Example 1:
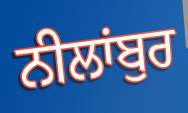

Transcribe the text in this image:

ਨੀਲਾਂਬੁਰ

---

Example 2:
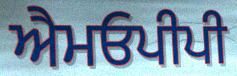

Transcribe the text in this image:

ਐਮਓਪੀਪੀ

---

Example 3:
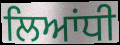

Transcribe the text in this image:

ਲਿਆਂਧੀ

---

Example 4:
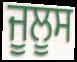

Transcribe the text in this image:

ਜੂਲੂਸ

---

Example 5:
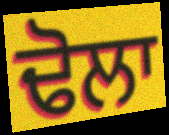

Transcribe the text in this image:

ਢੋਲਾ